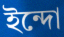
ইন্দো